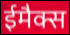
ईमैक्स